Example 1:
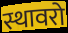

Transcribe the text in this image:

स्थावरो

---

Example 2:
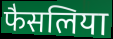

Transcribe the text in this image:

फैसलिया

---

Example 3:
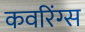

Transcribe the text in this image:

कवरिंग्स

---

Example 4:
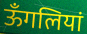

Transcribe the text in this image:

ऊँगलियां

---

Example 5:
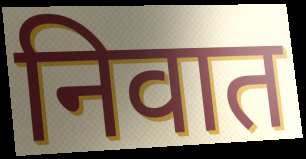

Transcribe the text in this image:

निवात